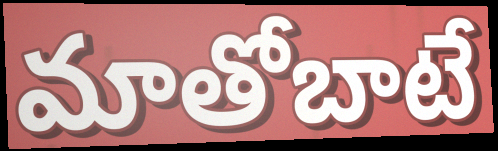
మాతోబాటే